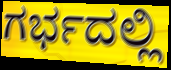
ಗರ್ಭದಲ್ಲಿ